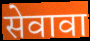
सेवावा